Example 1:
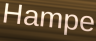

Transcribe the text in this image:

Hampe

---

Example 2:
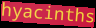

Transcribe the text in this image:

hyacinths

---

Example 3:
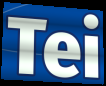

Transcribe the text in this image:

Tei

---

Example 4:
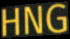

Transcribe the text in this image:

HNG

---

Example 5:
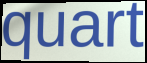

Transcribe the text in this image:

quart